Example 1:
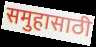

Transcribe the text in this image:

समुहासाठी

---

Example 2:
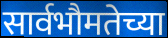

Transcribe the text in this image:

सार्वभौमतेच्या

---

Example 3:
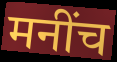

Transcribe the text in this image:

मनींच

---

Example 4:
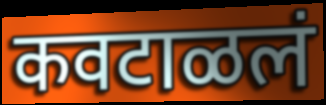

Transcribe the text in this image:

कवटाळलं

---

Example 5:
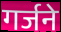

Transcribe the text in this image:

गर्जने